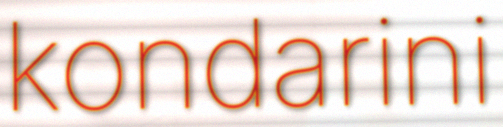
kondarini